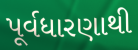
પૂર્વધારણાથી